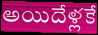
అయిదేళ్లకే